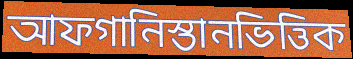
আফগানিস্তানভিত্তিক